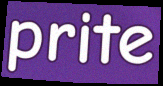
prite